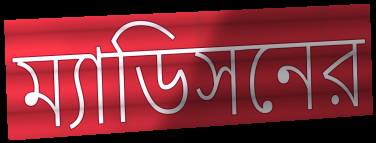
ম্যাডিসনের